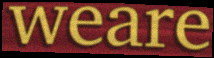
weare